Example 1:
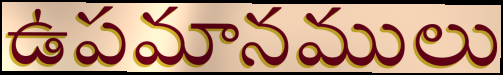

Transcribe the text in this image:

ఉపమానములు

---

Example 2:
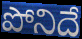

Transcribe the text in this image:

పోనిదే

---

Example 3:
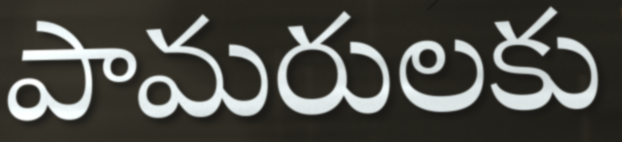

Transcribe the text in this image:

పామరులకు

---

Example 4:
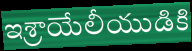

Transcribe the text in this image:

ఇశ్రాయేలీయుడికి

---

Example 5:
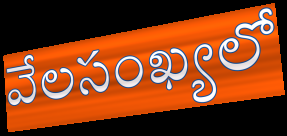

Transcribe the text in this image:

వేలసంఖ్యలో